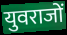
युवराजों